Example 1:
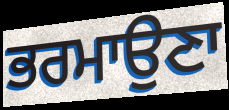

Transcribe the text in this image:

ਭਰਮਾਉਣਾ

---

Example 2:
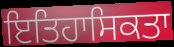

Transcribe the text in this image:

ਇਤਿਹਾਸਿਕਤਾ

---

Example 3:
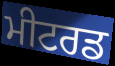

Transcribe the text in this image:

ਮੀਟਰਡ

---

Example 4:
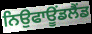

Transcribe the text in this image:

ਨਿਉਫਾਊਂਡਲੈਂਡ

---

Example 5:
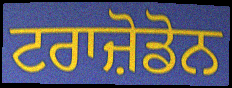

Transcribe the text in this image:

ਟਰਾਜ਼ੋਡੋਨ